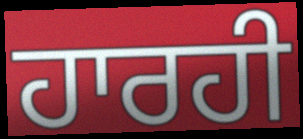
ਹਾਰਹੀ